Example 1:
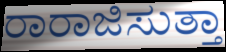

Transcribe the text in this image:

ರಾರಾಜಿಸುತ್ತಾ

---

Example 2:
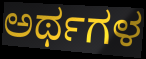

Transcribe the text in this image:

ಅರ್ಥಗಳ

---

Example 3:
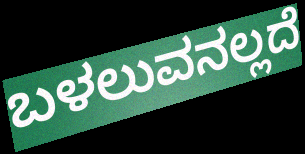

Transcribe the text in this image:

ಬಳಲುವನಲ್ಲದೆ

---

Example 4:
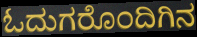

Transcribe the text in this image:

ಓದುಗರೊಂದಿಗಿನ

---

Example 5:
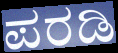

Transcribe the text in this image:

ಪರಡಿ